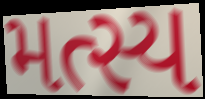
મત્સ્ય